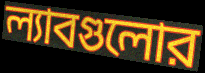
ল্যাবগুলোর